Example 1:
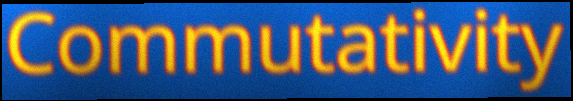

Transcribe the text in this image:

Commutativity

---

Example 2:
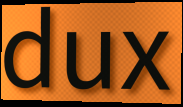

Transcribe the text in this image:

dux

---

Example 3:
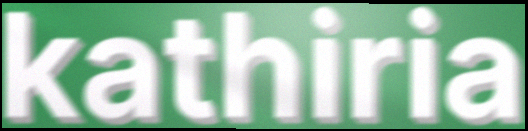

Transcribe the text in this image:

kathiria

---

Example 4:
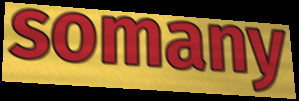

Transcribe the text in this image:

somany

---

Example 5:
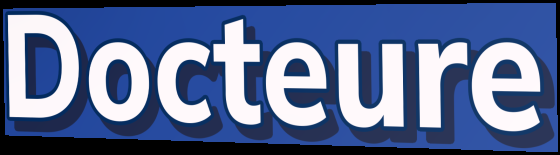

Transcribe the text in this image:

Docteure